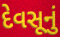
દેવસૂનું